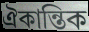
ঐকান্তিক